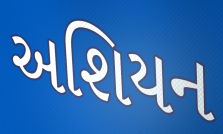
અશિયન